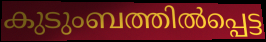
കുടുംബത്തിൽപ്പെട്ട